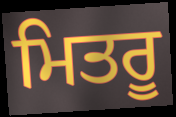
ਮਿਤਰੂ